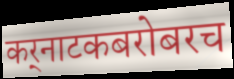
कर्नाटकबरोबरच